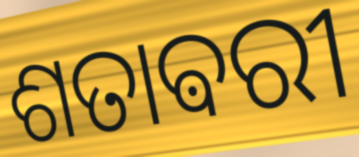
ଶତାଵରୀ